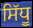
ਸਿੱਧੂ